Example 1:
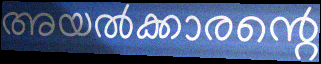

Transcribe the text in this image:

അയൽക്കാരന്റെ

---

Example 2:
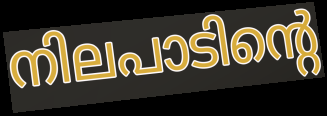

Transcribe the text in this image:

നിലപാടിന്റെ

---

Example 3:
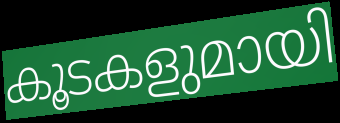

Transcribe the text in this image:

കൂടകളുമായി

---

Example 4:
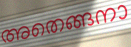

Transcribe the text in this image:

അതെങ്ങനാ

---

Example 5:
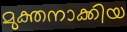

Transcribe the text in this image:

മുക്തനാക്കിയ